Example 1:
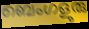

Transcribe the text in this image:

ബെംഗളുരു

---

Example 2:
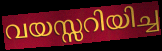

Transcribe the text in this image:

വയസ്സറിയിച്ച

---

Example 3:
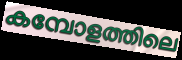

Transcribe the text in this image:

കമ്പോളത്തിലെ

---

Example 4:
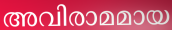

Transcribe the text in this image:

അവിരാമമായ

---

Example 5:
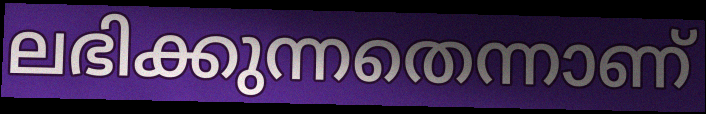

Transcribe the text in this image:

ലഭിക്കുന്നതെന്നാണ്